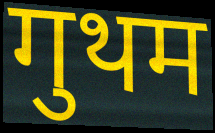
गुथम